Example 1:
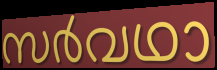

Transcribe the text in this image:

സർവഥാ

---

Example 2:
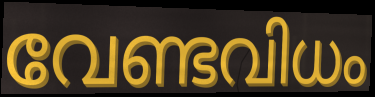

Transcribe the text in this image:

വേണ്ടവിധം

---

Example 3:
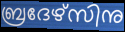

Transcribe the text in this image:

ബ്രദേഴ്സിനു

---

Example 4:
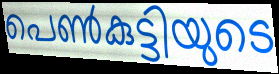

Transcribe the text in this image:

പെൺകുട്ടിയുടെ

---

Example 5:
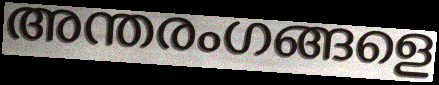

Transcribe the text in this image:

അന്തരംഗങ്ങളെ